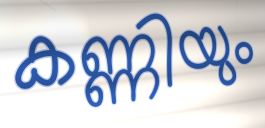
കണ്ണിയും